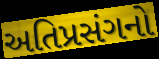
અતિપ્રસંગનો